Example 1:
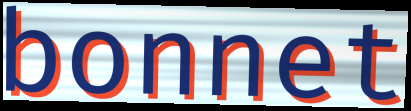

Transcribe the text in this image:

bonnet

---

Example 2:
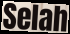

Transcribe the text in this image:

Selah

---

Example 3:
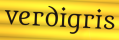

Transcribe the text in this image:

verdigris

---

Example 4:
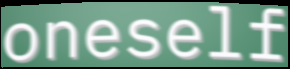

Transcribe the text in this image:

oneself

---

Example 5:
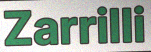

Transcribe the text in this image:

Zarrilli